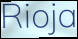
Rioja